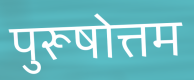
पुरूषोत्तम